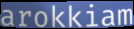
arokkiam